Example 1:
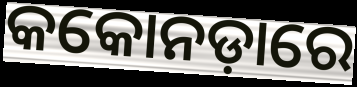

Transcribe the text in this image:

କକୋନଡ଼ାରେ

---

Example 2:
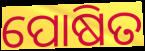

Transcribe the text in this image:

ପୋଷିତ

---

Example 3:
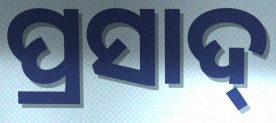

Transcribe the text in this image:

ପ୍ରସାଦ୍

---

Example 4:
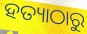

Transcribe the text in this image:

ହତ୍ୟାଠାରୁ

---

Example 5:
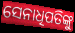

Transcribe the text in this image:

ସେନାଧିପତିଙ୍କୁ